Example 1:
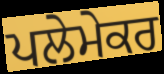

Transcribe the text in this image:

ਪਲੇਮੇਕਰ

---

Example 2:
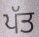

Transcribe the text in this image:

ਪੱਤ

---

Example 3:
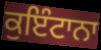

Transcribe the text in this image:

ਕੁਇੰਟਾਨਾ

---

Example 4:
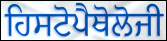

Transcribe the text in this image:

ਹਿਸਟੋਪੈਥੋਲੋਜੀ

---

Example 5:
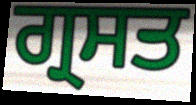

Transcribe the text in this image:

ਗ੍ਰਸਤ